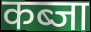
कब्‍जा